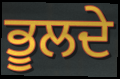
ਭੂਲਦੇ